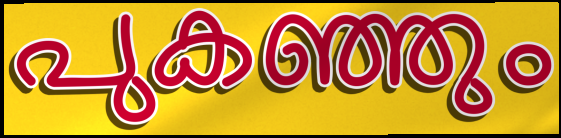
പുകഞ്ഞും